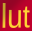
lut